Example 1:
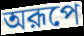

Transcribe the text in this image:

অরূপে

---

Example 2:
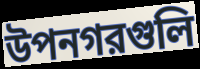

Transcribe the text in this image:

উপনগরগুলি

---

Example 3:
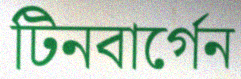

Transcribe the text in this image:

টিনবার্গেন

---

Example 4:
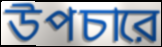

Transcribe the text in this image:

উপচারে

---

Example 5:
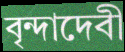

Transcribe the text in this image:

বৃন্দাদেবী